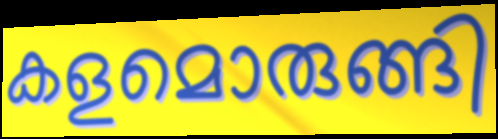
കളമൊരുങ്ങി